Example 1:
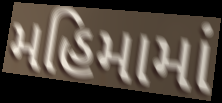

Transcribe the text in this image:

મહિમામાં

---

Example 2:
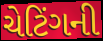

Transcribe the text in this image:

ચેટિંગની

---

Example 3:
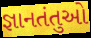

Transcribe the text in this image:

જ્ઞાનતંતુઓ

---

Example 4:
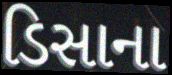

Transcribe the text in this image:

ડિસાના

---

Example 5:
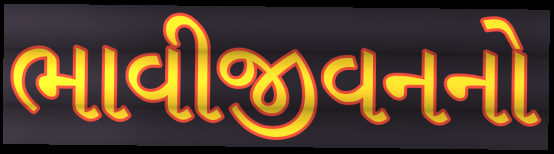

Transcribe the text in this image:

ભાવીજીવનનો